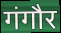
गंगौर